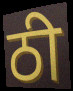
ठी